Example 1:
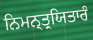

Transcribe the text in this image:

ਨਿਮਨ੍ਤ੍ਰਯਿਤਾਰੰ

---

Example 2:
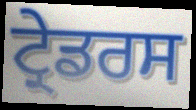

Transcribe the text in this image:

ਟ੍ਰੇਡਰਸ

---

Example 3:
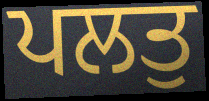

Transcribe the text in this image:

ਪਲਤੁ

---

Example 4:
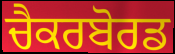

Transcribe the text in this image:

ਚੈਕਰਬੋਰਡ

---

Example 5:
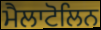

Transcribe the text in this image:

ਮੈਲਾਟੋਲਿਨ